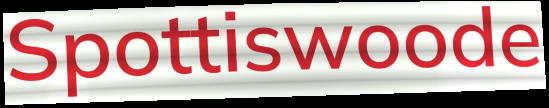
Spottiswoode